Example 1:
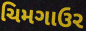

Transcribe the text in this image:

ચિમગાઉર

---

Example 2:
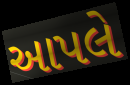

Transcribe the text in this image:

આપલે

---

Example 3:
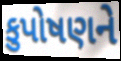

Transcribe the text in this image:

કુપોષણને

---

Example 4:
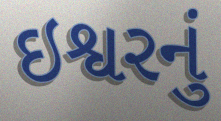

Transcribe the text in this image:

ઇશ્વરનું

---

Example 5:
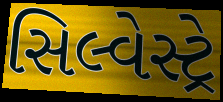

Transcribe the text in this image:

સિલ્વેસ્ટ્રે